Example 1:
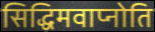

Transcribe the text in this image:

सिद्धिमवाप्नोति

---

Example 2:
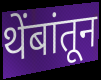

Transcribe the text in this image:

थेंबांतून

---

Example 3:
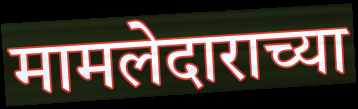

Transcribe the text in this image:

मामलेदाराच्या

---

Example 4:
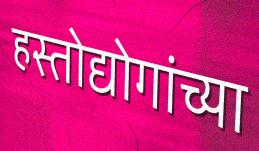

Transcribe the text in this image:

हस्तोद्योगांच्या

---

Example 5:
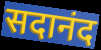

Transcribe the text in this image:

सदानंद